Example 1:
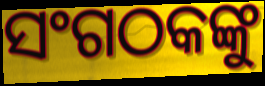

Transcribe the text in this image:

ସଂଗଠକଙ୍କୁ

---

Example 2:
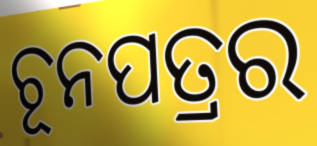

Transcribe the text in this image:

ଚୂନପତ୍ରର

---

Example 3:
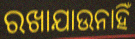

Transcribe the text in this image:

ରଖାଯାଉନାହିଁ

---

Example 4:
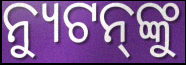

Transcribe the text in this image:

ନ୍ୟୁଟନ୍‌ଙ୍କୁ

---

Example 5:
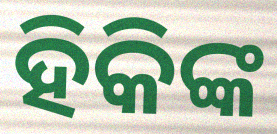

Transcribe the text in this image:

ହିକିଙ୍କ